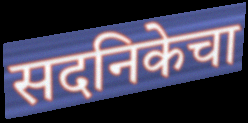
सदनिकेचा